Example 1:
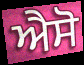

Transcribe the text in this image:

ਐਸੋ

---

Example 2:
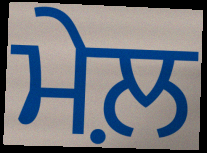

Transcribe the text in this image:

ਮੇਲ਼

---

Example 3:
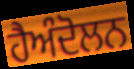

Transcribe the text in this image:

ਹੈਅੰਦੋਲਨ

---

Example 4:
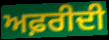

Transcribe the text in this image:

ਅਫ਼ਰੀਦੀ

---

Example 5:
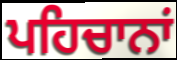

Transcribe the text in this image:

ਪਹਿਚਾਨਾਂ